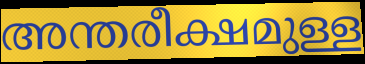
അന്തരീക്ഷമുള്ള